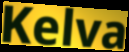
Kelva